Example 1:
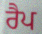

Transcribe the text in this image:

ਰੈਪ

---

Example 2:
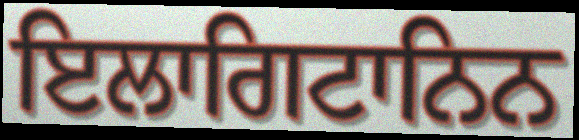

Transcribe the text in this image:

ਇਲਾਗਿਟਾਨਿਨ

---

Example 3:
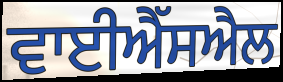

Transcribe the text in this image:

ਵਾਈਐੱਸਐਲ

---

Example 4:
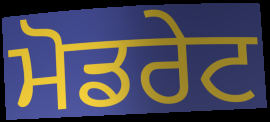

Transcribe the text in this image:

ਮੋਡਰੇਟ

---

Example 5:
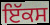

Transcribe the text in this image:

ਇੱਕਸ